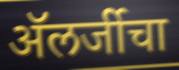
ॲलर्जीचा